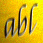
abl